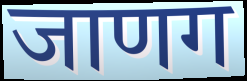
जाणग